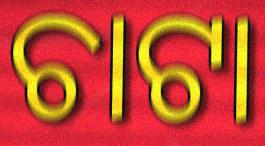
ଚାଟା